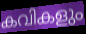
കവികളും